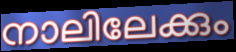
നാലിലേക്കും